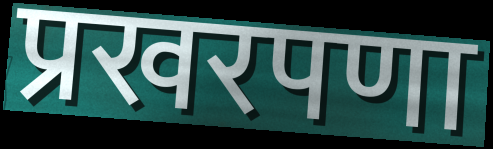
प्रखरपणा